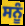
ਸਨੂੰ